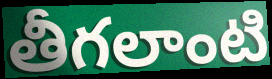
తీగలాంటి